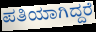
ಪತಿಯಾಗಿದ್ದರೆ